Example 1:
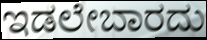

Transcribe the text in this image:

ಇಡಲೇಬಾರದು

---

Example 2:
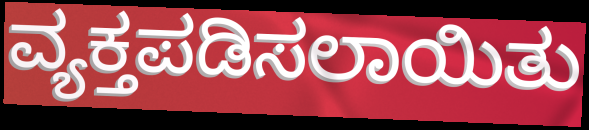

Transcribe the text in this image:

ವ್ಯಕ್ತಪಡಿಸಲಾಯಿತು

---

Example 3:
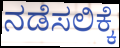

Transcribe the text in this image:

ನಡೆಸಲಿಕ್ಕೆ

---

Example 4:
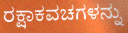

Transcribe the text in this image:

ರಕ್ಷಾಕವಚಗಳನ್ನು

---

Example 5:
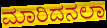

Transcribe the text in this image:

ಮಾರಿದನಲಾ